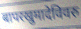
बापरखुमादेविवरु